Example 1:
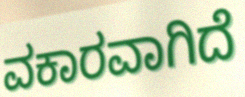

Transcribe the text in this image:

ವಕಾರವಾಗಿದೆ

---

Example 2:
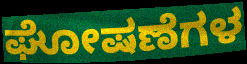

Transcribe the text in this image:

ಘೋಷಣೆಗಳ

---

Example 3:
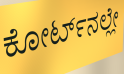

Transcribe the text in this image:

ಕೋರ್ಟ್‌ನಲ್ಲೇ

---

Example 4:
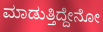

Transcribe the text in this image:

ಮಾಡುತ್ತಿದ್ದೇನೋ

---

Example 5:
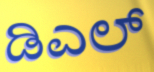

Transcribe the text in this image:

ಡಿಎಲ್